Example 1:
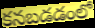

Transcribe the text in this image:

కనబడడంలో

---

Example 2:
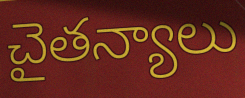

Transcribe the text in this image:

చైతన్యాలు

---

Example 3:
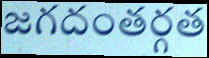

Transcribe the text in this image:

జగదంతర్గత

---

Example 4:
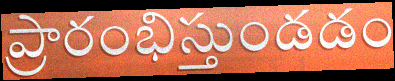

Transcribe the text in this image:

ప్రారంభిస్తుండడం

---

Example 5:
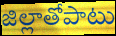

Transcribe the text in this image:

జిల్లాతోపాటు